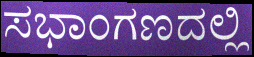
ಸಭಾಂಗಣದಲ್ಲಿ